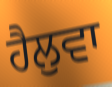
ਹੈਲੁਵਾ